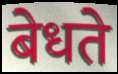
बेधते